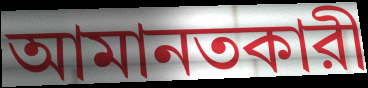
আমানতকারী